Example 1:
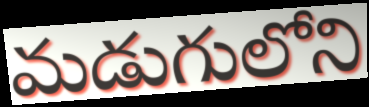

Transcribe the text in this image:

మడుగులోని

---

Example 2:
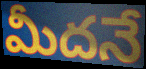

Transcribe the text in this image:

మీదనే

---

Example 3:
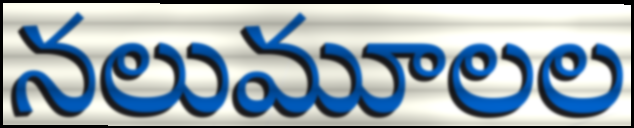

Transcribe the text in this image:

నలుమూలల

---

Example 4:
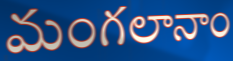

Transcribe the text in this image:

మంగలానాం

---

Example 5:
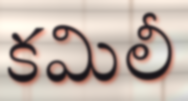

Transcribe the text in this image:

కమిలీ